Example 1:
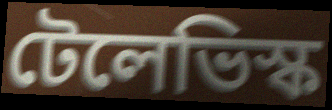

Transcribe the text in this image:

টেলেভিস্ক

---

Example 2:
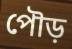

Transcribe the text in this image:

পৌড়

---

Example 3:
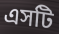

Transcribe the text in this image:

এসটি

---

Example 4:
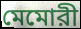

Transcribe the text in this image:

মেমোরী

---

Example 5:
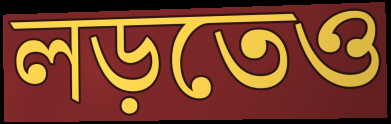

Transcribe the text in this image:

লড়তেও